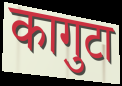
कागुटा